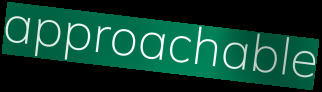
approachable